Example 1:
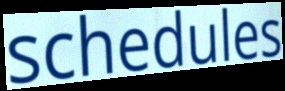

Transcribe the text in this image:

schedules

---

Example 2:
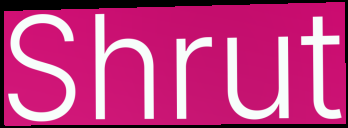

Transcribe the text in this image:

Shrut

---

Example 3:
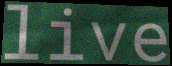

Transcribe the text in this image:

live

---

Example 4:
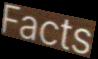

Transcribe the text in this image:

Facts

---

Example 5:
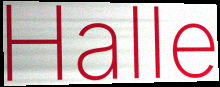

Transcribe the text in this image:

Halle